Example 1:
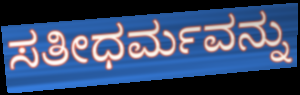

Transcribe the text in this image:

ಸತೀಧರ್ಮವನ್ನು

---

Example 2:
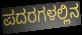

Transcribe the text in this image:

ಪದರಗಳಲ್ಲಿನ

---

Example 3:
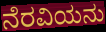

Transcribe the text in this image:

ನೆರವಿಯನು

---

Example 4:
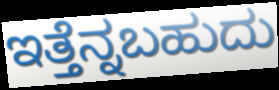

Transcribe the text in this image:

ಇತ್ತೆನ್ನಬಹುದು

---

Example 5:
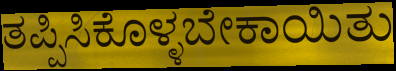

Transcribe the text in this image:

ತಪ್ಪಿಸಿಕೊಳ್ಳಬೇಕಾಯಿತು